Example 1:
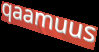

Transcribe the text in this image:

qaamuus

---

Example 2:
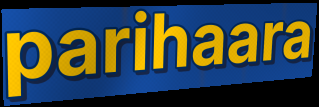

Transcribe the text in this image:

parihaara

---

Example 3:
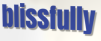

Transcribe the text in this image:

blissfully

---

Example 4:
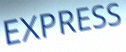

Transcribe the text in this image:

EXPRESS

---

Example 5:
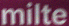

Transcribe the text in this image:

milte